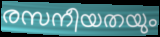
രസനീയതയും